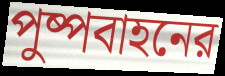
পুষ্পবাহনের